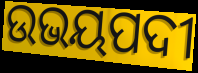
ଉଭୟପଦୀ